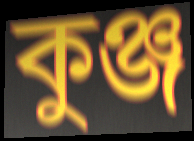
কুঞ্জ